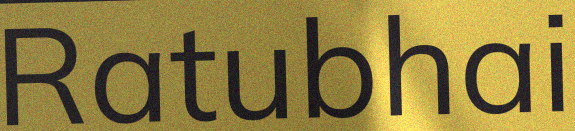
Ratubhai